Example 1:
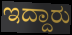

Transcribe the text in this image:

ಇದ್ದಾರು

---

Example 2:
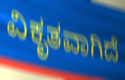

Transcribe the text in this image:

ವಿಕೃತವಾಗಿದೆ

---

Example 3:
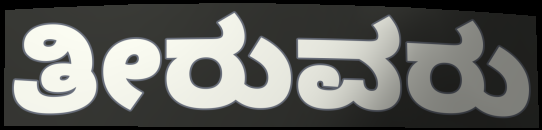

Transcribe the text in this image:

ತೀರುವರು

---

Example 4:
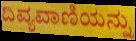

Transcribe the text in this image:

ದಿವ್ಯವಾಣಿಯನ್ನು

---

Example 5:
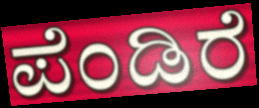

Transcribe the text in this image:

ಪೆಂಡಿರೆ